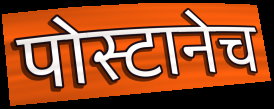
पोस्टानेच